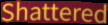
Shattered